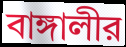
বাঙ্গালীর